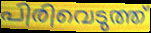
പിരിവെടുത്ത്